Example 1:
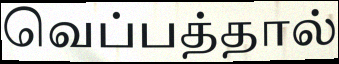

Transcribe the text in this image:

வெப்பத்தால்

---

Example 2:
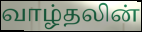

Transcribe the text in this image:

வாழ்தலின்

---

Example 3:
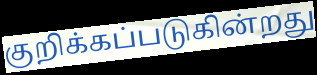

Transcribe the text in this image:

குறிக்கப்படுகின்றது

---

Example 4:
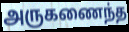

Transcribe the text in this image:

அருகணைந்த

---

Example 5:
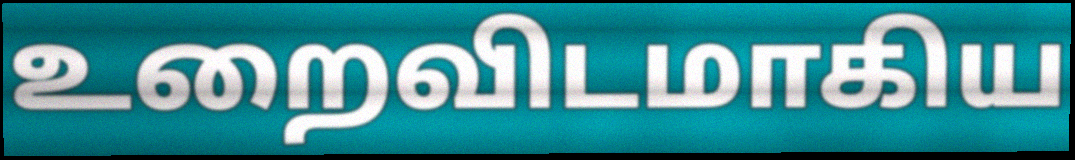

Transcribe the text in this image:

உறைவிடமாகிய